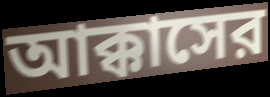
আক্কাসের